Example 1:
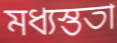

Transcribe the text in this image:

মধ্যস্ততা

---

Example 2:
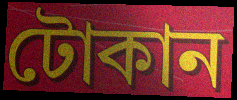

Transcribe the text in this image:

টোকান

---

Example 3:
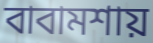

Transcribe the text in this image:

বাবামশায়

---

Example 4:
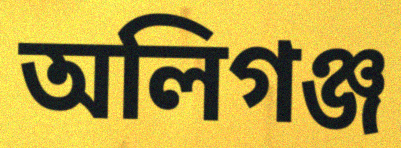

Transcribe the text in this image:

অলিগঞ্জ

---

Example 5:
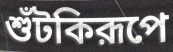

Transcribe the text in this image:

শুঁটকিরূপে